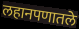
लहानपणातले